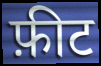
फ़ीट